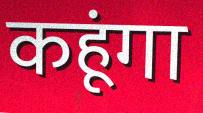
कहूंगा